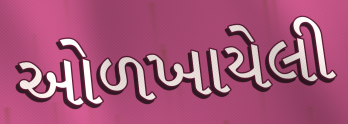
ઓળખાયેલી